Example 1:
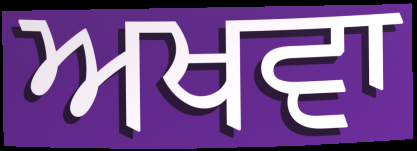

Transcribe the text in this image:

ਅਖਵਾ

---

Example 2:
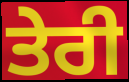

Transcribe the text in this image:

ਤੇਰੀ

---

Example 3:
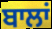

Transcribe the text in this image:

ਬਾਲਾਂ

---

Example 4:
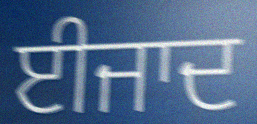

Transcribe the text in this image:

ਈਜਾਦ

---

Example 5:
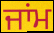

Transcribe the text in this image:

ਜਾਂਮ